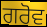
ਗਰੋਵ